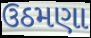
ઉઠમણા